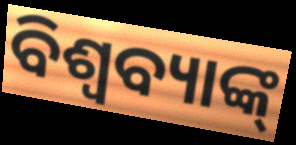
ବିଶ୍ଵବ୍ୟାଙ୍କ୍